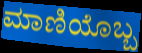
ಮಾಣಿಯೊಬ್ಬ